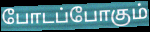
போடப்போகும்